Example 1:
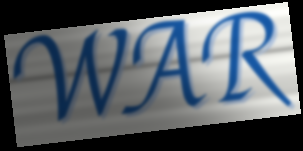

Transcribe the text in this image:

WAR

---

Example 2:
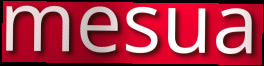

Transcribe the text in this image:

mesua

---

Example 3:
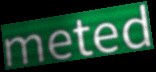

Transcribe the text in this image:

meted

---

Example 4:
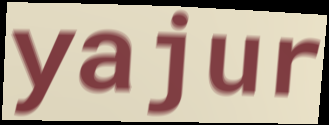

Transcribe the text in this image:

yajur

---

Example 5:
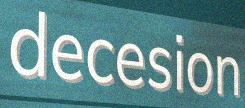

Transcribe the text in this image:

decesion